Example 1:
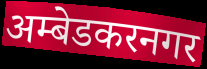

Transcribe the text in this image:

अम्बेडकरनगर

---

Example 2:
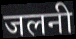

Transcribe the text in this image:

जलनी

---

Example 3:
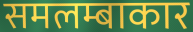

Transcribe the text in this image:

समलम्बाकार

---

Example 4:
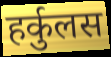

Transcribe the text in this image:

हर्कुलस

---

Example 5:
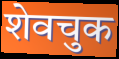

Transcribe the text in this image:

शेवचुक